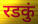
रडकुं